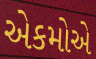
એકમોએ